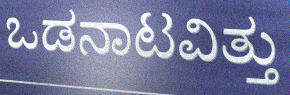
ಒಡನಾಟವಿತ್ತು